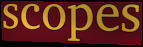
scopes